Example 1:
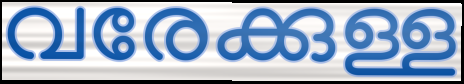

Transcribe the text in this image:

വരേക്കുള്ള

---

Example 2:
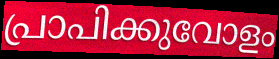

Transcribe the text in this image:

പ്രാപിക്കുവോളം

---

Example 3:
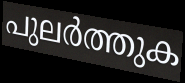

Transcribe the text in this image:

പുലർത്തുക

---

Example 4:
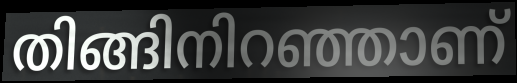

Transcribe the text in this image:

തിങ്ങിനിറഞ്ഞാണ്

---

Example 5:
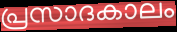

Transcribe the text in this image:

പ്രസാദകാലം